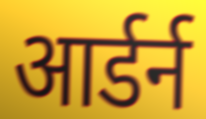
आर्डर्न